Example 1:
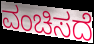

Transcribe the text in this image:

ವಂಚಿಸದೆ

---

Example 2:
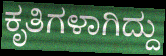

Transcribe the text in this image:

ಕೃತಿಗಳಾಗಿದ್ದು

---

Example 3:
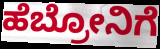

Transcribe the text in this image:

ಹೆಬ್ರೋನಿಗೆ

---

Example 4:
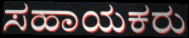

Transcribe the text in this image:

ಸಹಾಯಕರು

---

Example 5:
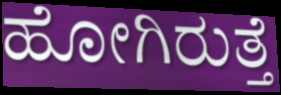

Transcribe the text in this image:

ಹೋಗಿರುತ್ತೆ